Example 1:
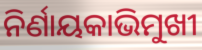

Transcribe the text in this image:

ନିର୍ଣାୟକାଭିମୁଖୀ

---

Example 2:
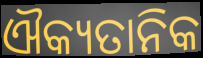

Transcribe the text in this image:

ଐକ୍ୟତାନିକ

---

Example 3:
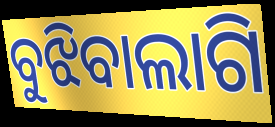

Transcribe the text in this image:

ବୁଝିବାଲାଗି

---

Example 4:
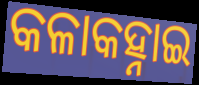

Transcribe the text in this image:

କଳାକହ୍ନାଇ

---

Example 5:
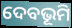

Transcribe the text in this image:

ଦେବଭୂମି